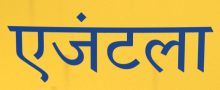
एजंटला